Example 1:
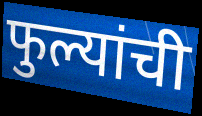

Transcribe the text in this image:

फुल्यांची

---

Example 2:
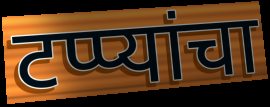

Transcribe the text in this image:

टप्प्यांचा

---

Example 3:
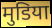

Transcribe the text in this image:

मुडिया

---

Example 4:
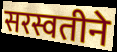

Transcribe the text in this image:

सरस्वतीने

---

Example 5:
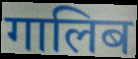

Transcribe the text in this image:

गालिब